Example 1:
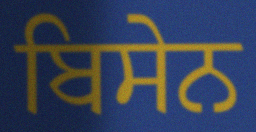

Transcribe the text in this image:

ਬਿਸੇਨ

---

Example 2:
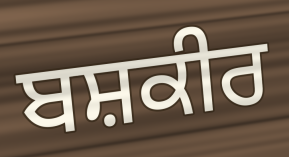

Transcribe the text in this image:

ਬਸ਼ਕੀਰ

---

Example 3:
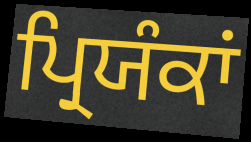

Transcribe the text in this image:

ਪ੍ਰਿਯੰਕਾਂ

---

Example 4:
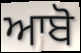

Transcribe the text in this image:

ਆਬੋ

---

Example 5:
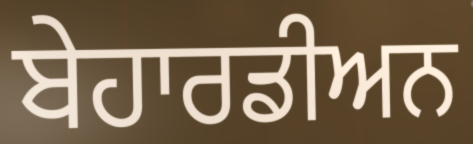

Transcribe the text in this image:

ਬੇਹਾਰਡੀਅਨ